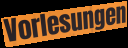
Vorlesungen